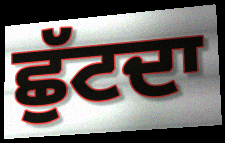
ਛੁੱਟਦਾ